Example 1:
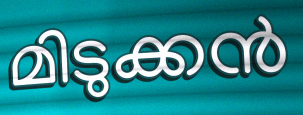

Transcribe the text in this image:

മിടുക്കൻ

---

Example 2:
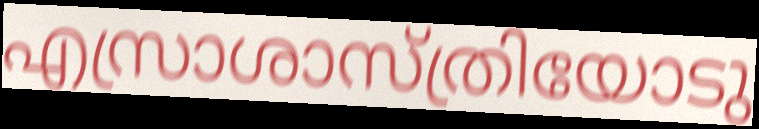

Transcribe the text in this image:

എസ്രാശാസ്ത്രിയോടു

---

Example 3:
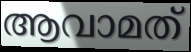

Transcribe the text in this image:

ആവാമത്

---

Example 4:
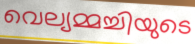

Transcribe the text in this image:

വെല്യമ്മച്ചിയുടെ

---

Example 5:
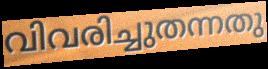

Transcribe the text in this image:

വിവരിച്ചുതന്നതു